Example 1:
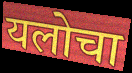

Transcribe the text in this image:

यलोचा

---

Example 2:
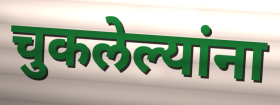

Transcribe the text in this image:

चुकलेल्यांना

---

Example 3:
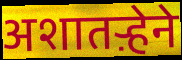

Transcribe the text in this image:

अशातऱ्‍हेने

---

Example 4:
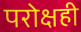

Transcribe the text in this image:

परोक्षही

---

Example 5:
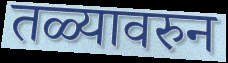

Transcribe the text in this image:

तळ्यावरुन